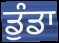
ਡੁੰਡਾ